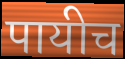
पायीच